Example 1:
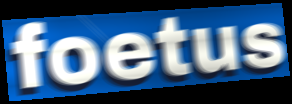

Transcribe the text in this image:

foetus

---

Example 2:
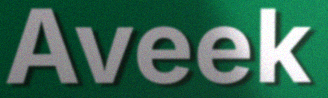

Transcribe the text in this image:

Aveek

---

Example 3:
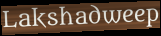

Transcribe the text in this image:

Lakshadweep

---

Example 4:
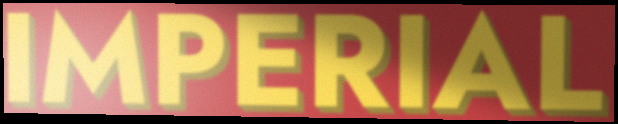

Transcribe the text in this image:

IMPERIAL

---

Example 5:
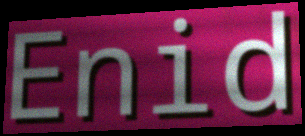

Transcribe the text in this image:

Enid